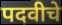
पदवीचे